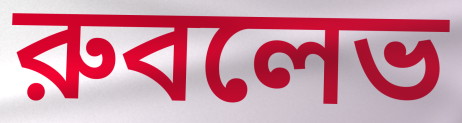
রুবলেভ